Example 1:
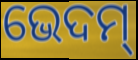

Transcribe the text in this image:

ଭେଦମ୍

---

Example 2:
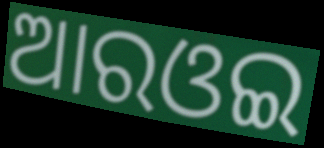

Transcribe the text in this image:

ଆରଓଇ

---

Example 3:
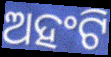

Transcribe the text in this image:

ଅହଂଟି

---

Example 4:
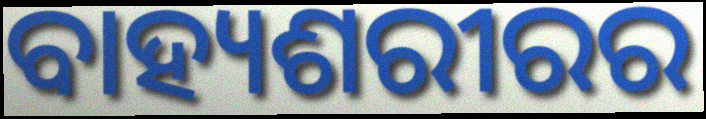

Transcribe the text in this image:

ବାହ୍ୟଶରୀରର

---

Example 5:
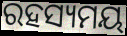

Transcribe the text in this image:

ରହସ୍ୟମୟ